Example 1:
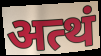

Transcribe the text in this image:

अत्थं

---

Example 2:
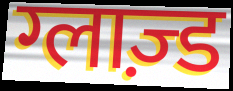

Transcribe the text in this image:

ग्लाज़्ड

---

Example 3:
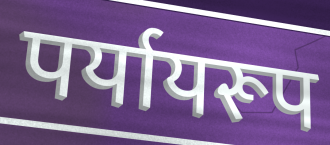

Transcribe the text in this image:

पर्यायरूप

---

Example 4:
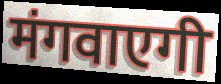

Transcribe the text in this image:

मंगवाएगी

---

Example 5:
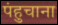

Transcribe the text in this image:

पंहुचाना